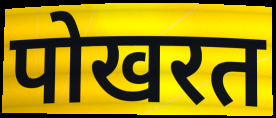
पोखरत